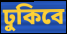
ঢুকিবে